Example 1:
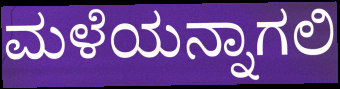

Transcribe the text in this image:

ಮಳೆಯನ್ನಾಗಲಿ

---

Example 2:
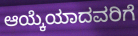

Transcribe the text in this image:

ಆಯ್ಕೆಯಾದವರಿಗೆ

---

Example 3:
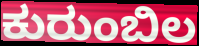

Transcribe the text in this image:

ಕುರುಂಬಿಲ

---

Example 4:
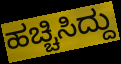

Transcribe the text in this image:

ಹಚ್ಚಿಸಿದ್ದು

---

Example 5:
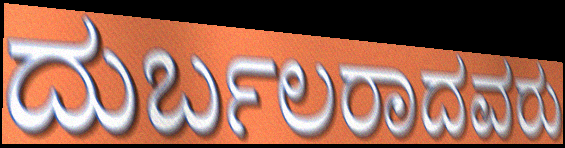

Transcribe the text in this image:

ದುರ್ಬಲರಾದವರು